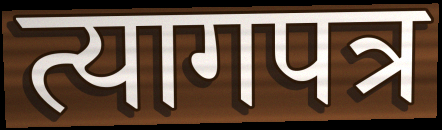
त्यागपत्र